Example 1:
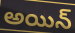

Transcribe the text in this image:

అయిన్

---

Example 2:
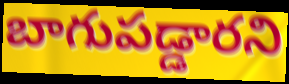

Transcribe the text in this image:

బాగుపడ్డారని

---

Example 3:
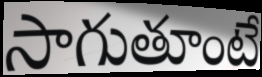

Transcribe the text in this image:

సాగుతూంటే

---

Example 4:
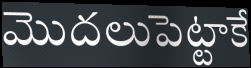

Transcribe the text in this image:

మొదలుపెట్టాకే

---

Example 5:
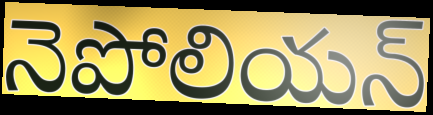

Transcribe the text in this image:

నెపోలియన్